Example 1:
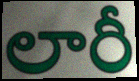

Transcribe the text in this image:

లారీ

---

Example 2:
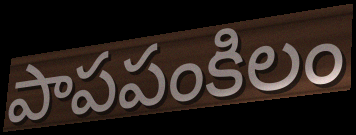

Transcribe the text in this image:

పాపపంకిలం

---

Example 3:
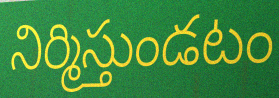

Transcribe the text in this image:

నిర్మిస్తుండటం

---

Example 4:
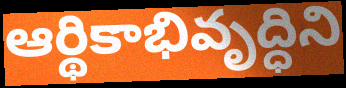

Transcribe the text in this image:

ఆర్థికాభివృద్ధిని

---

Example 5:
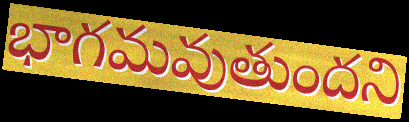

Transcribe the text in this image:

భాగమవుతుందని